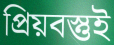
প্রিয়বস্তুই